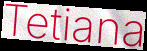
Tetiana